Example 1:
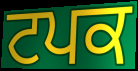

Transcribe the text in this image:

ਟਪਕ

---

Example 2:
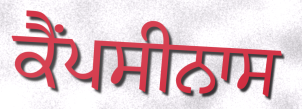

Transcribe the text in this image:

ਕੈਂਪਸੀਨਾਸ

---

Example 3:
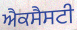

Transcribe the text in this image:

ਐਕਸੈਸਟੀ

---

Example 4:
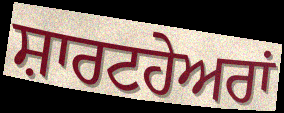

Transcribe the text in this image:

ਸ਼ਾਰਟਹੇਅਰਾਂ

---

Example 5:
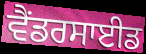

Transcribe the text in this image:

ਵੈਂਡਰਸਾਈਡ